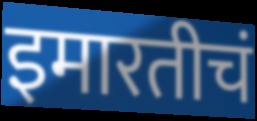
इमारतीचं